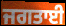
ਜਗਤਾਈ